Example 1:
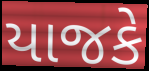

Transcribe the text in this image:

યાજકે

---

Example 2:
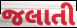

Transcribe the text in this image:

જલાતી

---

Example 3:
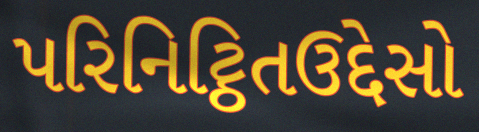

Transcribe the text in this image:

પરિનિટ્ઠિતઉદ્દેસો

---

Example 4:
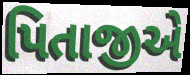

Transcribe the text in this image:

પિતાજીએ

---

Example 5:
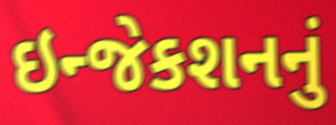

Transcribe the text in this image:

ઇન્જેકશનનું